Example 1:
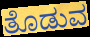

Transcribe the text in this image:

ತೊಡುವ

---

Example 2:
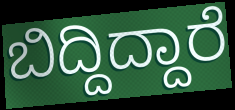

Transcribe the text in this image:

ಬಿದ್ದಿದ್ದಾರೆ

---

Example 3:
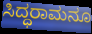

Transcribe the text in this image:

ಸಿದ್ಧರಾಮನೂ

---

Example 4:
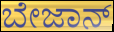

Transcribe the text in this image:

ಬೇಜಾನ್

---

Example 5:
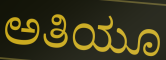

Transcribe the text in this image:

ಅತಿಯೂ